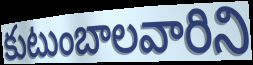
కుటుంబాలవారిని